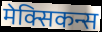
मेक्सिकन्स